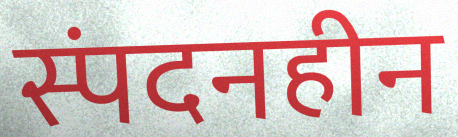
स्पंदनहीन